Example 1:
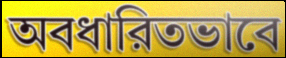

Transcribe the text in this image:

অবধারিতভাবে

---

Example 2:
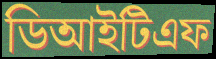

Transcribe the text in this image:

ডিআইটিএফ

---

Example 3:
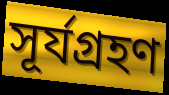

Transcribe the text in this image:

সূর্যগ্রহণ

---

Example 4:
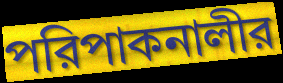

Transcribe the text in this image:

পরিপাকনালীর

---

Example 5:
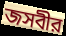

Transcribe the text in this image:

জসবীর